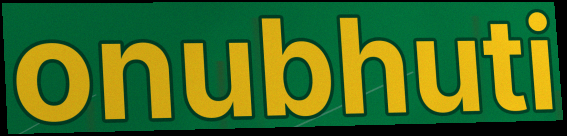
onubhuti